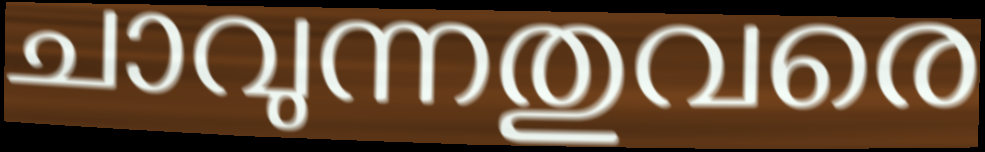
ചാവുന്നതുവരെ